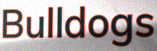
Bulldogs